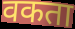
वकता